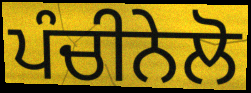
ਪੰਚੀਨੇਲੋ